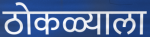
ठोकळ्याला